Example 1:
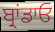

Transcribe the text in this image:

ਬ੍ਰਾਂਡਾਓ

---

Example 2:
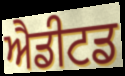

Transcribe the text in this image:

ਐਡੀਟਡ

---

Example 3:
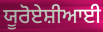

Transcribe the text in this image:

ਯੂਰੋਏਸ਼ੀਆਈ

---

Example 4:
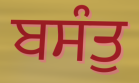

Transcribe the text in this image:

ਬਸੰਤੁ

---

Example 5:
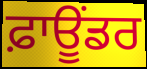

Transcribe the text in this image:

ਫ਼ਾਊਂਡਰ